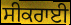
ਸੀਕਰਾਈ